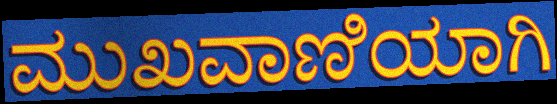
ಮುಖವಾಣಿಯಾಗಿ